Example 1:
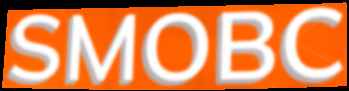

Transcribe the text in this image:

SMOBC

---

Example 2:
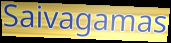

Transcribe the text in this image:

Saivagamas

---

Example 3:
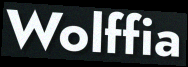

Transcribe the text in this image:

Wolffia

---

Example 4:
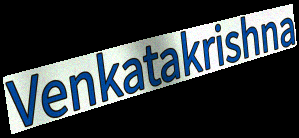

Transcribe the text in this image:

Venkatakrishna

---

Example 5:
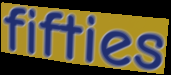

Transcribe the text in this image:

fifties